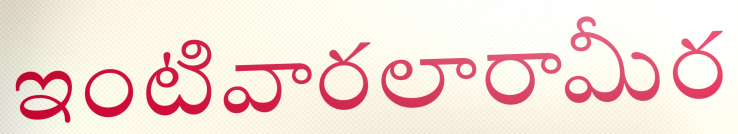
ఇంటివారలారామీర